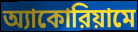
অ্যাকোরিয়ামে